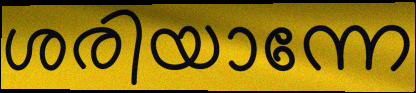
ശരിയാന്നേ